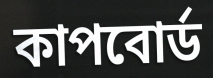
কাপবোর্ড